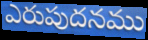
ఎరుపుదనము